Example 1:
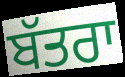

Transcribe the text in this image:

ਬੱਤਰਾ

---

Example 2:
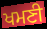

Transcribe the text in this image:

ਖਮਣੀ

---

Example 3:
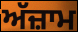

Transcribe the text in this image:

ਅੱਜ਼ਾਮ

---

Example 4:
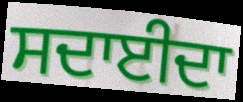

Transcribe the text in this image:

ਸਦਾਈਦਾ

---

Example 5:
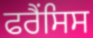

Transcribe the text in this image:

ਫਰੈਂਸਿਸ